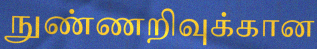
நுண்ணறிவுக்கான